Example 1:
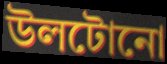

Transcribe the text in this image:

উলটোনো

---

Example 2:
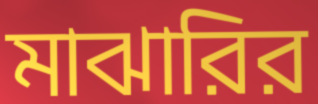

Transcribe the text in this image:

মাঝারির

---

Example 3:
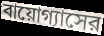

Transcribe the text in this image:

বায়োগ্যাসের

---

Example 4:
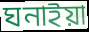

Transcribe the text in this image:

ঘনাইয়া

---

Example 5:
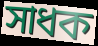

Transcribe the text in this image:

সাধক